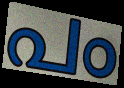
പം